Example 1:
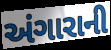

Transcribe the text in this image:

અંગારાની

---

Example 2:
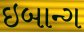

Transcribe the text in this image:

ઇબાન્ગ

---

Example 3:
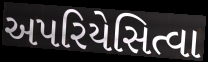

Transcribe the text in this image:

અપરિયેસિત્વા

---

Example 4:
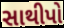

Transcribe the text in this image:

સાથીપો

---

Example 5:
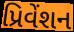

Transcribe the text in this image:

પ્રિવેંશન